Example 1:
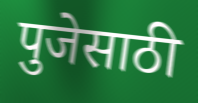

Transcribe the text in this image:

पुजेसाठी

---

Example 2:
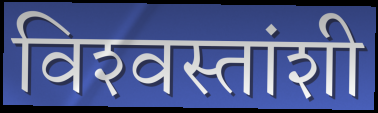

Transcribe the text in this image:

विश्वस्तांशी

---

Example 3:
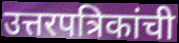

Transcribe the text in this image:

उत्तरपत्रिकांची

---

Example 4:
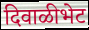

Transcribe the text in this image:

दिवाळीभेट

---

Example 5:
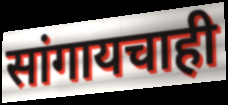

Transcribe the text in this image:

सांगायचाही